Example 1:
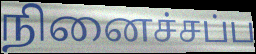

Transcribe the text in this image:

நினைச்சப்ப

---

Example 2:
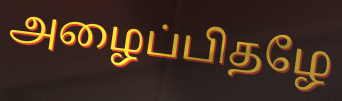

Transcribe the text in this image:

அழைப்பிதழே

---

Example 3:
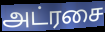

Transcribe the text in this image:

அட்ரசை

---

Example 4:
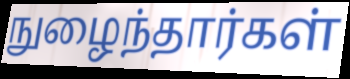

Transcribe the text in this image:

நுழைந்தார்கள்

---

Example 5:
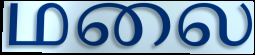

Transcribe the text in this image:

மலை